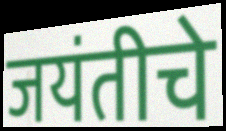
जयंतीचे